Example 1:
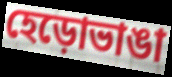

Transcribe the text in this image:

হেড়োভাঙা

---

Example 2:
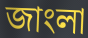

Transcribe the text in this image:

জাংলা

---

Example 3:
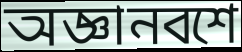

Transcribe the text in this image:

অজ্ঞানবশে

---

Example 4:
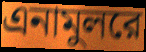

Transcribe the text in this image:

এনামুলরে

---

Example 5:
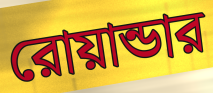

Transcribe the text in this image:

রোয়ান্ডার